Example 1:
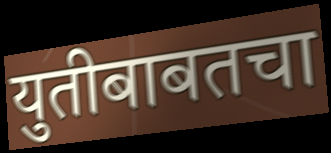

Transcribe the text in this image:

युतीबाबतचा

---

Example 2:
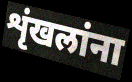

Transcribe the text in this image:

शृंखलांना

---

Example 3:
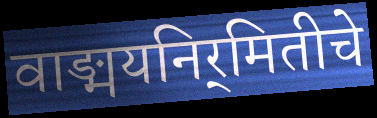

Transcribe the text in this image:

वाङ्मयनिर्मितीचे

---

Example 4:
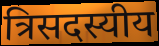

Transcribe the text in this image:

त्रिसदस्यीय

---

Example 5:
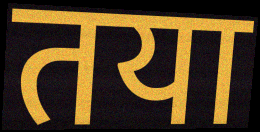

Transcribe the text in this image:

तया